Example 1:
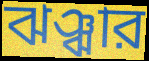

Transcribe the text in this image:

ঝঞ্ঝার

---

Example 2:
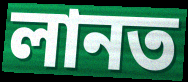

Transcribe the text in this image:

লানত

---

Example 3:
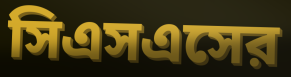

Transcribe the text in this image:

সিএসএসের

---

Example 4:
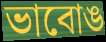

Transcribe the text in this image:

ভাবোঙ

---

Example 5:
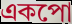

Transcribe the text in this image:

একপো